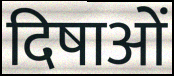
दिषाओं